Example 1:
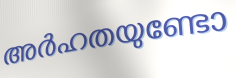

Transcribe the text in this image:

അർഹതയുണ്ടോ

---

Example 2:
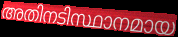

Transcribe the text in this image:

അതിനടിസ്ഥാനമായ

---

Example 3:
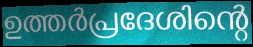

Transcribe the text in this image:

ഉത്തർപ്രദേശിന്റെ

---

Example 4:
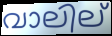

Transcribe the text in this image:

വാലില്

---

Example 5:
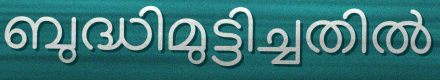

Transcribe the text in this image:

ബുദ്ധിമുട്ടിച്ചതിൽ